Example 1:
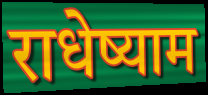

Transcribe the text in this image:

राधेष्याम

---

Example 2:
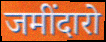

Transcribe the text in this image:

जमींदारो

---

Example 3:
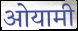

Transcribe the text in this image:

ओयामी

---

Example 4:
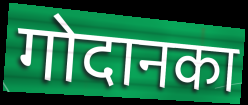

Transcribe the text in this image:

गोदानका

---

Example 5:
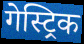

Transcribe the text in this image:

गेस्ट्रिक